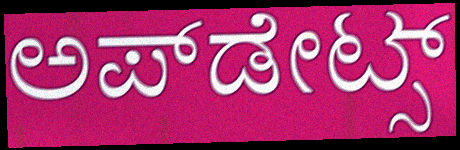
ಅಪ್‌ಡೇಟ್ಸ್